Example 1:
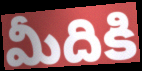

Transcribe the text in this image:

మీదికి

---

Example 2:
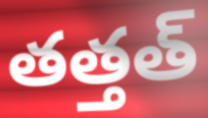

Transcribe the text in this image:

తత్తత్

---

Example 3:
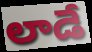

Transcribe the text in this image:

లాడే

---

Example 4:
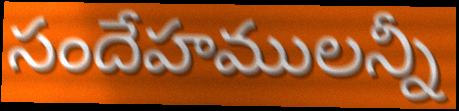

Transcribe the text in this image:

సందేహములన్నీ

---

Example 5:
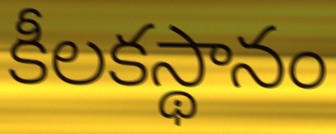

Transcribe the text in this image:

కీలకస్థానం